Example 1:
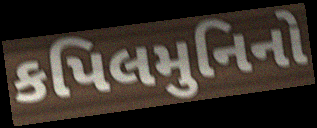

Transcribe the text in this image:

કપિલમુનિનો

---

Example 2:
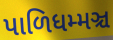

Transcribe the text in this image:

પાળિધમ્મઞ્ચ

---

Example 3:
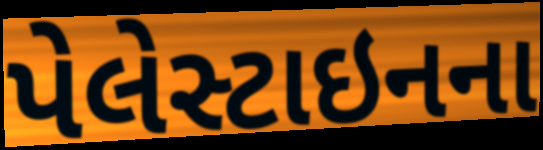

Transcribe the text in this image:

પેલેસ્ટાઇનના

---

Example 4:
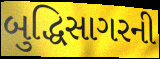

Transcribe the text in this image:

બુદ્ધિસાગરની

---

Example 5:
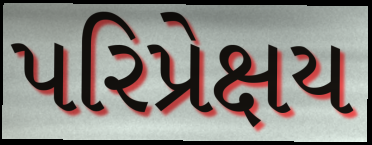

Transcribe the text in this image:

પરિપ્રેક્ષય